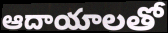
ఆదాయాలతో